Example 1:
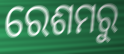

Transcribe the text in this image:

ରେଶମରୁ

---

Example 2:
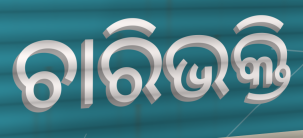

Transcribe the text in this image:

ଚାରିଭକ୍ତି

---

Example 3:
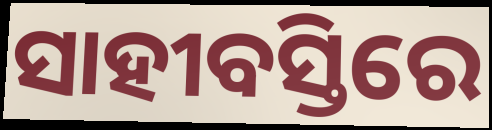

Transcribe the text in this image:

ସାହୀବସ୍ତିରେ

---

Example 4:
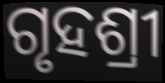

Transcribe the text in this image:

ଗୃହଶ୍ରୀ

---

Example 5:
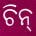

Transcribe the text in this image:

ଚିନ୍